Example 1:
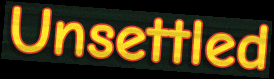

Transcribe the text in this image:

Unsettled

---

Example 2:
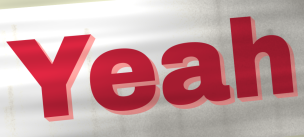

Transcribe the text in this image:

Yeah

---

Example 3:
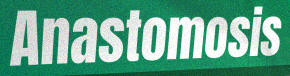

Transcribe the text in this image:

Anastomosis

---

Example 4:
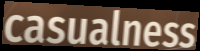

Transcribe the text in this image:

casualness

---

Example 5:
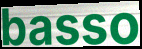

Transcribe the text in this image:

basso